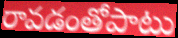
రావడంతోపాటు